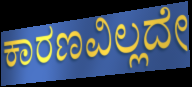
ಕಾರಣವಿಲ್ಲದೇ